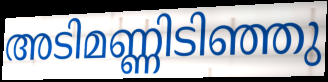
അടിമണ്ണിടിഞ്ഞു